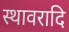
स्थावरादि